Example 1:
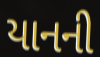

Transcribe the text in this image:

યાનની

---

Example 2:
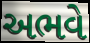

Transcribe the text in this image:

અભવે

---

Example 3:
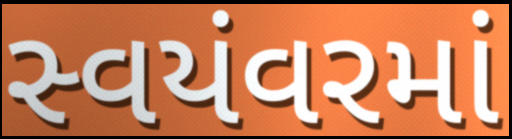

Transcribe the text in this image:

સ્વયંવરમાં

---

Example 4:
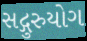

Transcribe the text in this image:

સદ્ગુરુયોગ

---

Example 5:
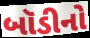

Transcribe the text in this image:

બૉડીનો